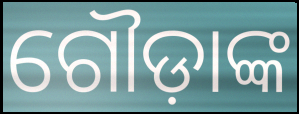
ଗୌଡ଼ାଙ୍କ